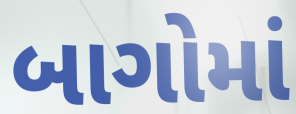
બાગોમાં